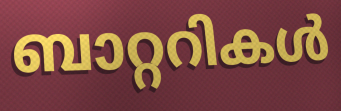
ബാറ്ററികൾ